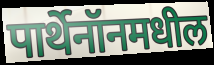
पार्थेनॉनमधील